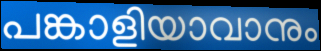
പങ്കാളിയാവാനും